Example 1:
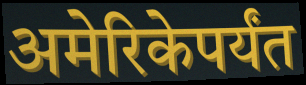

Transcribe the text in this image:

अमेरिकेपर्यंत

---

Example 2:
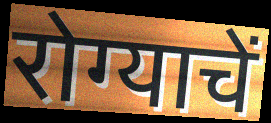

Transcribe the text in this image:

रोग्याचें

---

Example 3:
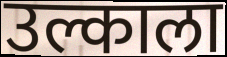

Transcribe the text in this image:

उल्काला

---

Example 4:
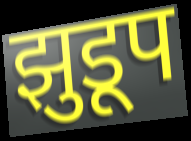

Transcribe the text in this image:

झुडूप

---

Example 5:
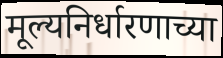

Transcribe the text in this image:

मूल्यनिर्धारणाच्या